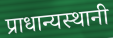
प्राधान्यस्थानी